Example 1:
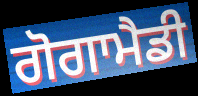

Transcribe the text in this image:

ਗੋਗਾਮੈਡੀ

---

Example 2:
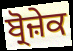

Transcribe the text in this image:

ਬ੍ਰੋਜ਼ੇਕ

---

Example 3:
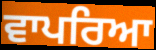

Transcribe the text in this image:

ਵਾਪਰਿਆ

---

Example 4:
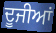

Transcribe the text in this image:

ਦੂਜੀਆਂ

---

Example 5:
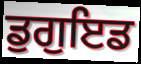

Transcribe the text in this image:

ਡੁਗੁਇਡ